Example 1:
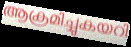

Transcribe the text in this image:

ആക്രമിച്ചുകയറി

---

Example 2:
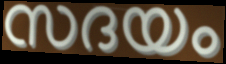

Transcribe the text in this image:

സദയം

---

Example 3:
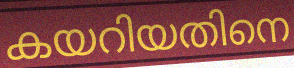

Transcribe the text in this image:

കയറിയതിനെ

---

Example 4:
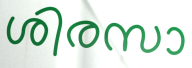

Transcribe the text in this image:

ശിരസാ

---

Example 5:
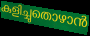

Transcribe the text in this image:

കുളിച്ചുതൊഴാൻ